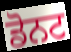
ਡੋਨਟ